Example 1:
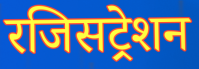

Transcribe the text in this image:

रजिसट्रेशन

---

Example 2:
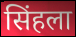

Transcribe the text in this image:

सिंहला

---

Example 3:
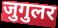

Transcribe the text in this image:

जुगुलर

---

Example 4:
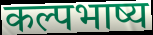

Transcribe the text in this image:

कल्पभाष्य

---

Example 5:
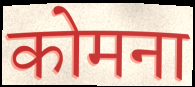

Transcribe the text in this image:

कोमना